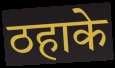
ठहाके